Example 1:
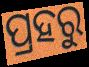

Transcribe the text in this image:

ପ୍ରହରୁ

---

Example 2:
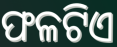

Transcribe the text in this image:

ଫଳଟିଏ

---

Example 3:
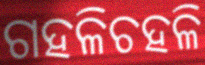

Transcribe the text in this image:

ଗହଳିଚହଳି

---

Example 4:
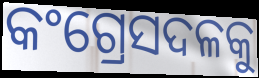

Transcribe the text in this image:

କଂଗ୍ରେସଦଳକୁ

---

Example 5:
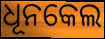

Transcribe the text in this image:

ଧୂନକେଲ